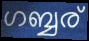
ഗബ്ബര്